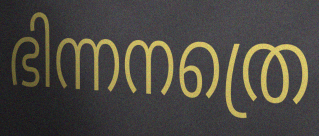
ഭിന്നനത്രെ